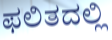
ಫಲಿತದಲ್ಲಿ